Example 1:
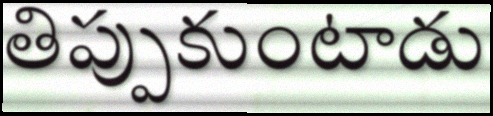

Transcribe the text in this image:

తిప్పుకుంటాడు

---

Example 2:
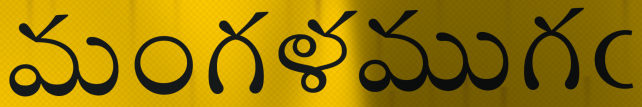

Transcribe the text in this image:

మంగళముగఁ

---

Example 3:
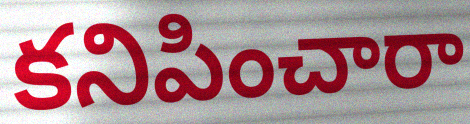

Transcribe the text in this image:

కనిపించారా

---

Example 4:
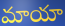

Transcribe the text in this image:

మాయా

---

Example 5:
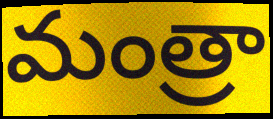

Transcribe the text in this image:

మంత్రా